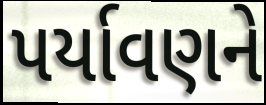
પર્યાવણને